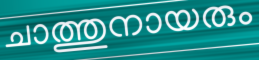
ചാത്തുനായരും